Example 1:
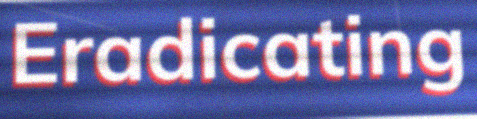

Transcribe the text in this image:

Eradicating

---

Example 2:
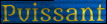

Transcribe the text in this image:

Puissant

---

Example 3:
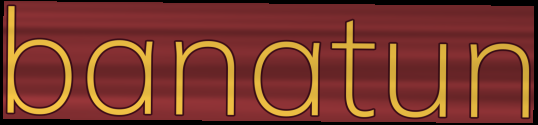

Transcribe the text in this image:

banatun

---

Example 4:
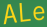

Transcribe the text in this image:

ALe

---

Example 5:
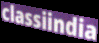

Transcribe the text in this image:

classiindia